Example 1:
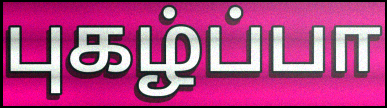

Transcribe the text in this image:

புகழ்ப்பா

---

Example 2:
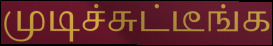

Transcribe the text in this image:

முடிச்சுட்டீங்க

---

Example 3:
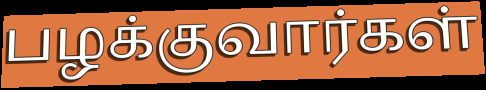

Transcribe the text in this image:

பழக்குவார்கள்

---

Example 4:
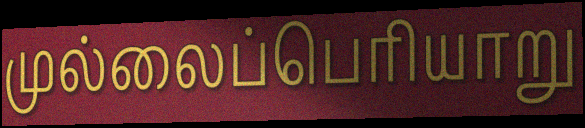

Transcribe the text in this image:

முல்லைப்பெரியாறு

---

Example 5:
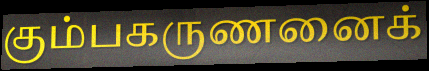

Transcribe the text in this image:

கும்பகருணனைக்